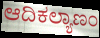
ಆದಿಕಲ್ಯಾಣಂ